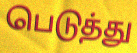
பெடுத்து